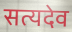
सत्यदेव